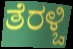
ತೆರಳ್ಚಿ